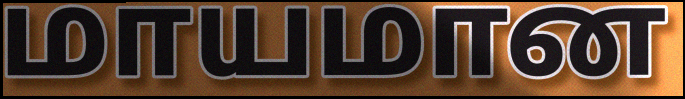
மாயமான